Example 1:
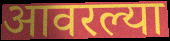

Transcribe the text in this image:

आवरल्या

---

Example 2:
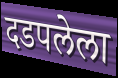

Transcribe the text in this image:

दडपलेला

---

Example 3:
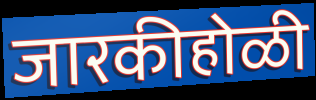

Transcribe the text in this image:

जारकीहोळी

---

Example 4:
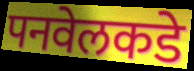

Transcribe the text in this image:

पनवेलकडे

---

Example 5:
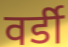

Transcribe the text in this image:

वर्डी